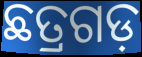
ଛତ୍ରଗଡ଼